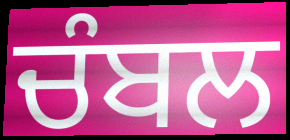
ਚੰਬਲ